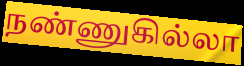
நண்ணுகில்லா